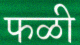
फळी